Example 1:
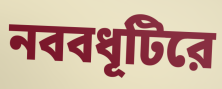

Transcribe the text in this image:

নববধূটিরে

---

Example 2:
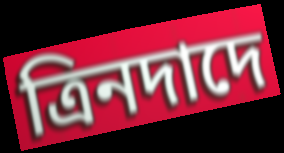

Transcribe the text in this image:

ত্রিনদাদে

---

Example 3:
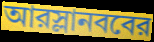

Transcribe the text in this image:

আরস্লানববের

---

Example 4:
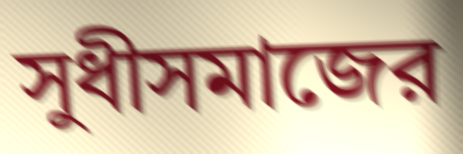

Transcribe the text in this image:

সুধীসমাজের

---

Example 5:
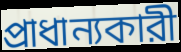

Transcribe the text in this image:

প্রাধান্যকারী